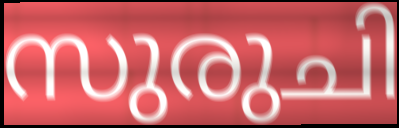
സുരുചി